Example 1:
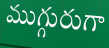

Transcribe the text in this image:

ముగ్గురుగా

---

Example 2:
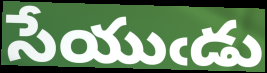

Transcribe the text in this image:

సేయుఁడు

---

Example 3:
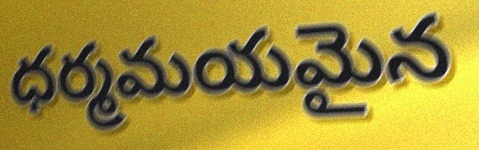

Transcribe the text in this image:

ధర్మమయమైన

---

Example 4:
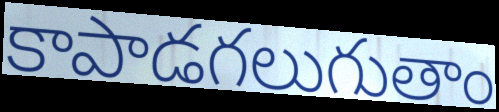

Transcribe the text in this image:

కాపాడగలుగుతాం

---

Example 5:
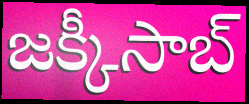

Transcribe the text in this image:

జక్కీసాబ్